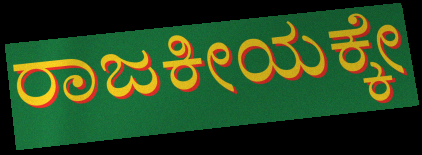
ರಾಜಕೀಯಕ್ಕೇ